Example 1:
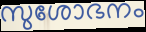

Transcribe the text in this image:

സുശോഭനം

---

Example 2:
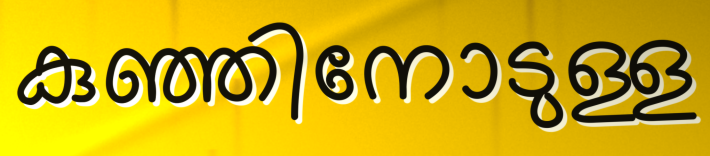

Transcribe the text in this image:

കുഞ്ഞിനോടുള്ള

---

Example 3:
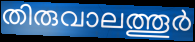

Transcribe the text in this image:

തിരുവാലത്തൂർ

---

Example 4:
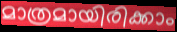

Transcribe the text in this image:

മാത്രമായിരിക്കാം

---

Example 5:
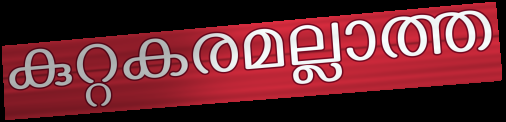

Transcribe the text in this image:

കുറ്റകരമല്ലാത്ത